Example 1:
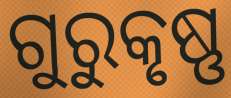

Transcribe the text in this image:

ଗୁରୁକୃଷ୍ଣ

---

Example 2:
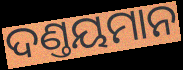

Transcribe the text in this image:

ଦଣ୍ତୟମାନ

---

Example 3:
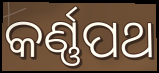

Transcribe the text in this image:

କର୍ଣ୍ଣପଥ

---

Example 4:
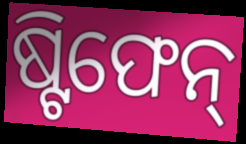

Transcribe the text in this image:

ଷ୍ଟିଫେନ୍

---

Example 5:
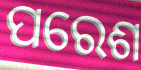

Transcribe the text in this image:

ପରେଶ